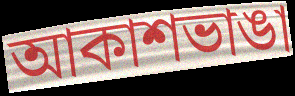
আকাশভাঙা